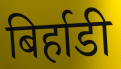
बिर्हाडी